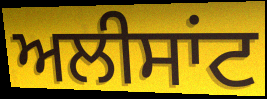
ਅਲੀਸਾਂਟ